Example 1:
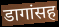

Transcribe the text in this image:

डागांसह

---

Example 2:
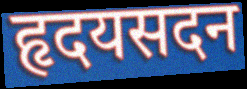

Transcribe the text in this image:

हृदयसदन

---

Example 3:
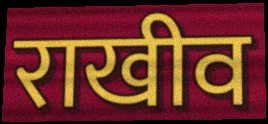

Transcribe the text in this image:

राखीव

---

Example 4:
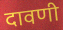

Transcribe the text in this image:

दावणी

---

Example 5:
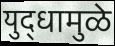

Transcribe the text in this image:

युद्धामुळे